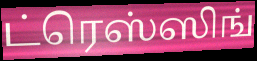
ட்ரெஸ்ஸிங்